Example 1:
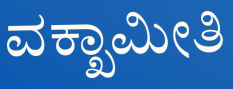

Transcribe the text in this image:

ವಕ್ಖಾಮೀತಿ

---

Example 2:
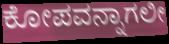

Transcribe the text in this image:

ಕೋಪವನ್ನಾಗಲೀ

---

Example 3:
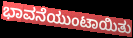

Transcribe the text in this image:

ಭಾವನೆಯುಂಟಾಯಿತು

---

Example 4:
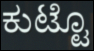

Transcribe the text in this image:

ಕುಟ್ಟೊ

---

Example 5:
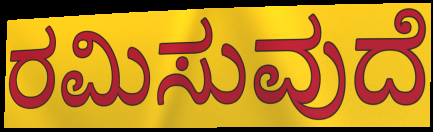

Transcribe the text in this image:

ರಮಿಸುವುದೆ